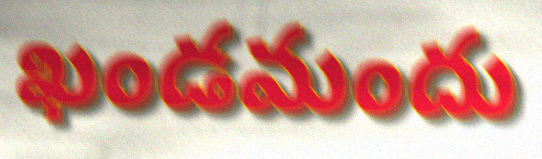
ఖండమందు